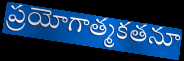
ప్రయోగాత్మకతనూ